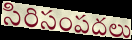
సిరిసంపదలు